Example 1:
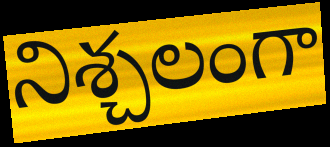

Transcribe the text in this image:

నిశ్చలంగా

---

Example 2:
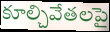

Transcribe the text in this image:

కూల్చివేతలపై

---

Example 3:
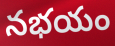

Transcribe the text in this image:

నభయం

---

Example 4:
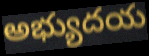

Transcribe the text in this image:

అభ్యుదయ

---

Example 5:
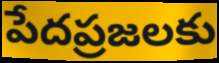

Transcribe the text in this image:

పేదప్రజలకు